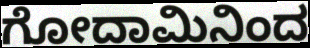
ಗೋದಾಮಿನಿಂದ